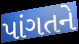
પાંગતને